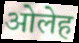
ओलेह